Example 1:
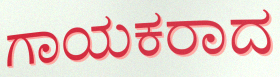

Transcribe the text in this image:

ಗಾಯಕರಾದ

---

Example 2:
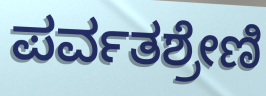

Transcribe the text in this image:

ಪರ್ವತಶ್ರೇಣಿ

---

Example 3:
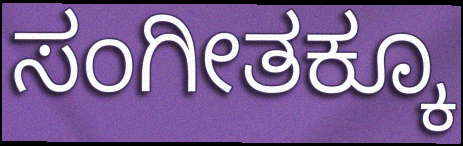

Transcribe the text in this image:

ಸಂಗೀತಕ್ಕೂ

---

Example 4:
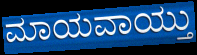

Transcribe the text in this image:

ಮಾಯವಾಯ್ತು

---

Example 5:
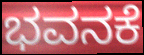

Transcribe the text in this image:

ಭವನಕೆ